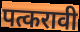
पत्करावी